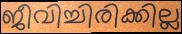
ജീവിച്ചിരിക്കില്ല